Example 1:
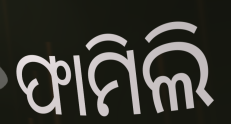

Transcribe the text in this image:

ଫାମିଲି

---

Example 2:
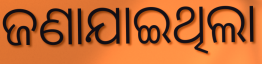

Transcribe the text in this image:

ଜଣାଯାଇଥିଲା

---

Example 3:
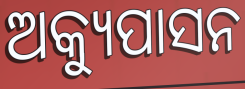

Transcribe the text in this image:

ଅକ୍ୟୁପାସନ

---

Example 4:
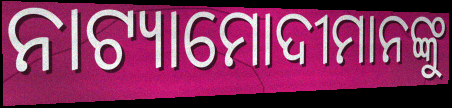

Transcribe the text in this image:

ନାଟ୍ୟାମୋଦୀମାନଙ୍କୁ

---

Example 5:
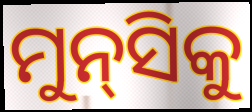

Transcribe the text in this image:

ମୁନ୍‌ସିକୁ